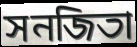
সনজিতা